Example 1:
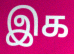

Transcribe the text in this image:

இக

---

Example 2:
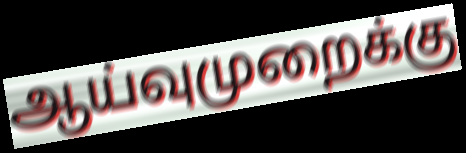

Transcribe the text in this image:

ஆய்வுமுறைக்கு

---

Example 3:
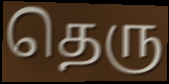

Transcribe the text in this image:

தெரு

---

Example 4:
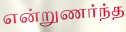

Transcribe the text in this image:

என்றுணர்ந்த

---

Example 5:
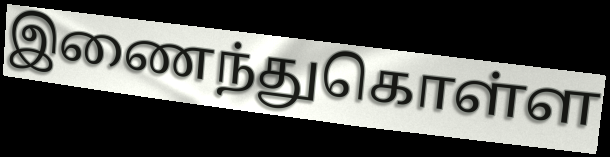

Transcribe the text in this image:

இணைந்துகொள்ள